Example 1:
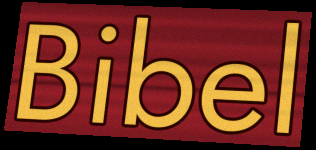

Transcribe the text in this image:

Bibel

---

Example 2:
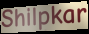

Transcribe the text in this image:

Shilpkar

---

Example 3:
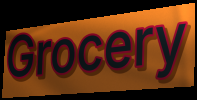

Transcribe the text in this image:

Grocery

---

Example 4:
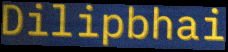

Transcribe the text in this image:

Dilipbhai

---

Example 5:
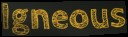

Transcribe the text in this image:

Igneous